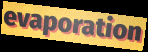
evaporation